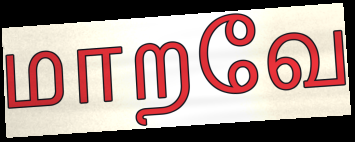
மாறவே